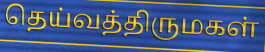
தெய்வத்திருமகள்